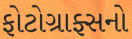
ફોટોગ્રાફ્સનો